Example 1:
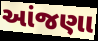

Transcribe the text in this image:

આંજણા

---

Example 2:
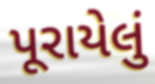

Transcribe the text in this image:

પૂરાયેલું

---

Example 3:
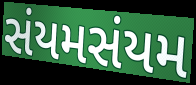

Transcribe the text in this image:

સંયમસંયમ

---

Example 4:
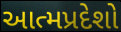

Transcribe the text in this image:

આત્મપ્રદેશો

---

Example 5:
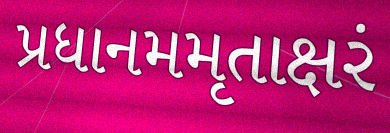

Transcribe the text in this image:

પ્રધાનમમૃતાક્ષરં